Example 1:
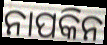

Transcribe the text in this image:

ନାପକିନ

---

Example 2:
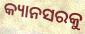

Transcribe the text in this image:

କ୍ୟାନସରକୁ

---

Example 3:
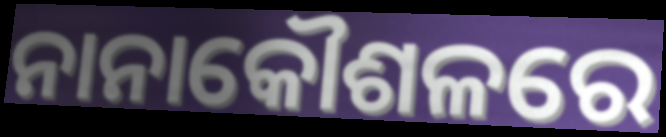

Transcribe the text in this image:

ନାନାକୌଶଳରେ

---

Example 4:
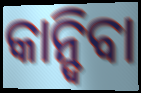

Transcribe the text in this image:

କାନ୍ଦିବା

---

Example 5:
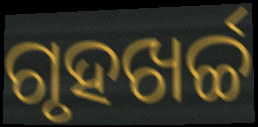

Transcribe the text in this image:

ଗୃହଖର୍ଚ୍ଚ